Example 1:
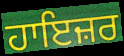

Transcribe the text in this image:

ਹਾਇਜ਼ਰ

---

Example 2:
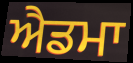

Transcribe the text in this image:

ਐਡਮਾ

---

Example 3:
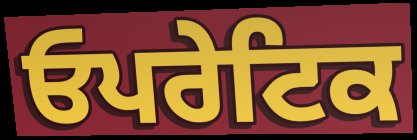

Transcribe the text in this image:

ਓਪਰੇਟਿਕ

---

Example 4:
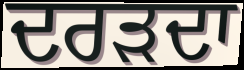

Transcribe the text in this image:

ਦਰੜਦਾ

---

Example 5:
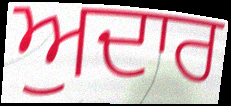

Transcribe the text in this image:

ਅੁਦਾਰ